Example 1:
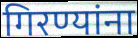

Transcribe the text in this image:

गिरण्यांना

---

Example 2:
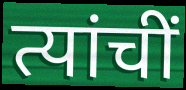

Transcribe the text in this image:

त्यांचीं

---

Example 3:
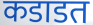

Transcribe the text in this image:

कडाडत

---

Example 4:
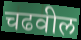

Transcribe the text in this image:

चढवील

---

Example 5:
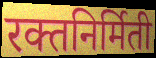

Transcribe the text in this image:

रक्तनिर्मिती